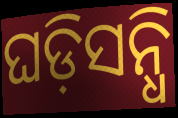
ଘଡ଼ିସନ୍ଧି